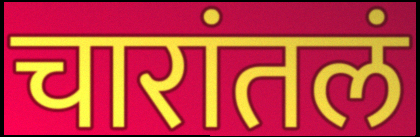
चारांतलं